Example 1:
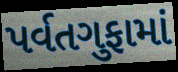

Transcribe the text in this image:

પર્વતગુફામાં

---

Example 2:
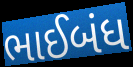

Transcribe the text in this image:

ભાઈબંધ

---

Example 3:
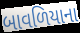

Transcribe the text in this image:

બાવળિયાના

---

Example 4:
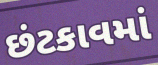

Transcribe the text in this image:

છંટકાવમાં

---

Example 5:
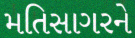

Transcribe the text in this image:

મતિસાગરને